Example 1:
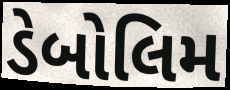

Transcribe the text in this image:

ડેબોલિમ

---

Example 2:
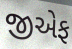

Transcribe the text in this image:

જીએફ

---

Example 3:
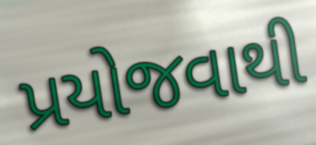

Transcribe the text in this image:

પ્રયોજવાથી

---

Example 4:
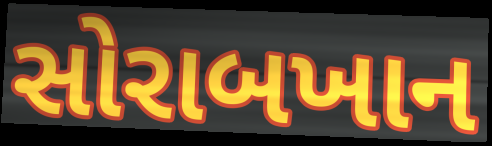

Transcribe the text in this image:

સોરાબખાન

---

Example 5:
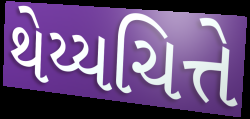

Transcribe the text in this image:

થેય્યચિત્તે